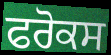
ਫਰੋਕਸ